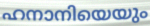
ഹനാനിയെയും